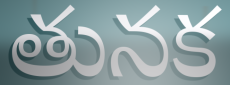
తునక